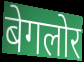
बेगलोर